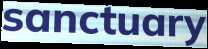
sanctuary